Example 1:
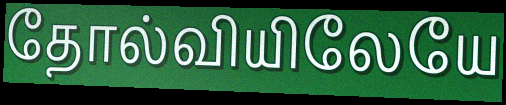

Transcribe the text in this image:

தோல்வியிலேயே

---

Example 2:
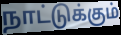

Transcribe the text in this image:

நாட்டுக்கும்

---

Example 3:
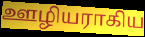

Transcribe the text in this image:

ஊழியராகிய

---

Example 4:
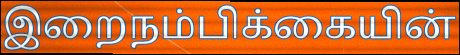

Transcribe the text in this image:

இறைநம்பிக்கையின்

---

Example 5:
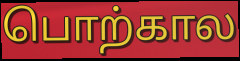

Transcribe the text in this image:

பொற்கால